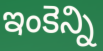
ఇంకెన్ని